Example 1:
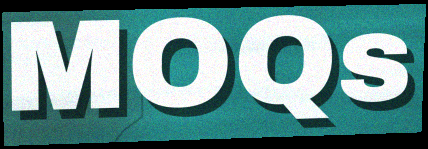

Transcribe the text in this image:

MOQs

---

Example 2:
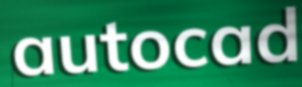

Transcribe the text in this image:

autocad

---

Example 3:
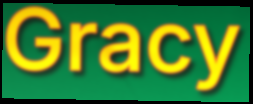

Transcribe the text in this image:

Gracy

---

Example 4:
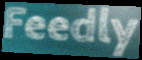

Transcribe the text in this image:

Feedly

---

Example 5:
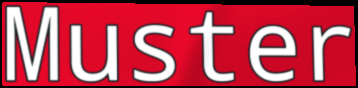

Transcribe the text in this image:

Muster